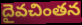
దైవచింతన